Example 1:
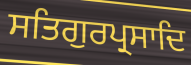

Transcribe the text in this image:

ਸਤਿਗੁਰਪ੍ਰਸਾਦਿ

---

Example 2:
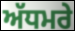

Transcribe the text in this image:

ਅੱਧਮਰੇ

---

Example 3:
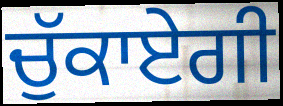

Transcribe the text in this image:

ਚੁੱਕਾਏਗੀ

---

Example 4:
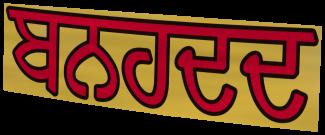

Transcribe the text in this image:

ਬਨਹਦਦ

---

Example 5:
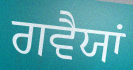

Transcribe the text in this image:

ਗਵੈਯਾਂ